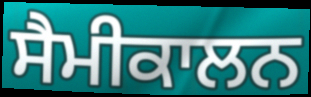
ਸੈਮੀਕਾਲਨ